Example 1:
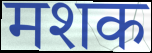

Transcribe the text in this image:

मशक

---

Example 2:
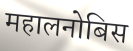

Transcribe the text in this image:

महालनोबिस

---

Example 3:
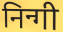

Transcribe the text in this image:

निन्गी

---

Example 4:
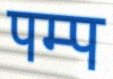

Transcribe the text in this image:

पम्प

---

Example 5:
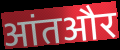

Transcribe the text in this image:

आंतऔर